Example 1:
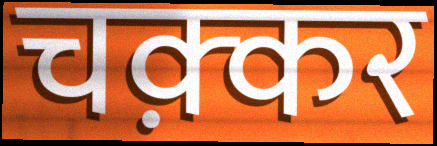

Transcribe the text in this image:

चक़्कर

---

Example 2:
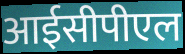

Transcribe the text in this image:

आईसीपीएल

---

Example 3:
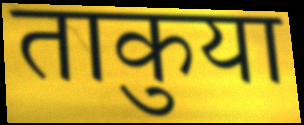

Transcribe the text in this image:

ताकुया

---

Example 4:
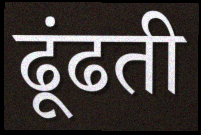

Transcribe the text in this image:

ढूंढती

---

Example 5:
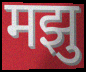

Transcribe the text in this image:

मझु